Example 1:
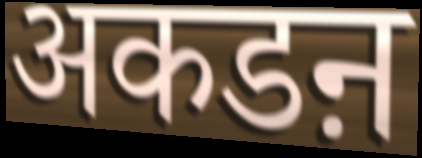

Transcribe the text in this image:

अकडऩ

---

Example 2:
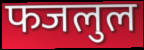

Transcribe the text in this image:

फजलुल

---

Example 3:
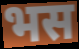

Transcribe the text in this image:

भस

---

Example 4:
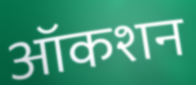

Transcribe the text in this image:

ऑकशन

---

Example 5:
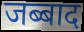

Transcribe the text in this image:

जब्बाद